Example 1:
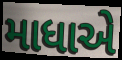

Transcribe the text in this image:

માધાએ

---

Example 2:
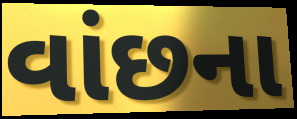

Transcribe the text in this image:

વાંછના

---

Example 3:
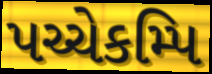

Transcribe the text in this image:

પચ્ચેકમ્પિ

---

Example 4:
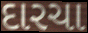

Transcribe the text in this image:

દારચા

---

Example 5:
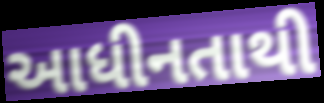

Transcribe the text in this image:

આધીનતાથી